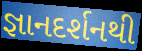
જ્ઞાનદર્શનથી